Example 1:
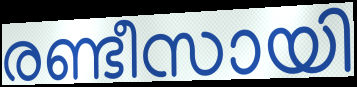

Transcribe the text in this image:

രണ്ടീസായി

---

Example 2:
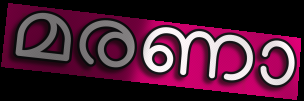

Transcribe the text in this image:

മരണാ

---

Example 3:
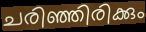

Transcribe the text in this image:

ചരിഞ്ഞിരിക്കും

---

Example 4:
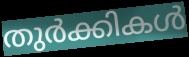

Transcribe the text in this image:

തുർക്കികൾ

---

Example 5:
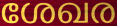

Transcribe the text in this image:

ശേഖര